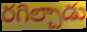
రగిల్చాడు